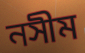
নসীম